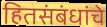
हितसंबंधांचे